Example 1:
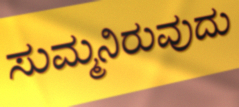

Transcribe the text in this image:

ಸುಮ್ಮನಿರುವುದು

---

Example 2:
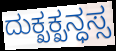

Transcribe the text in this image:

ದುಕ್ಖಕ್ಖನ್ಧಸ್ಸ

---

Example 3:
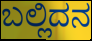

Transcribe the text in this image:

ಬಲ್ಲಿದನ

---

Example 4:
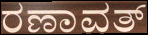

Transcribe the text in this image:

ರಣಾವತ್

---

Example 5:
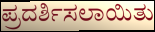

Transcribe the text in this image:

ಪ್ರದರ್ಶಿಸಲಾಯಿತು